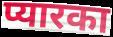
प्यारका